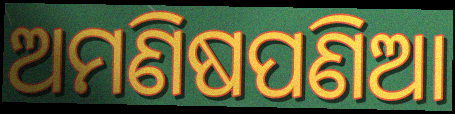
ଅମଣିଷପଣିଆ